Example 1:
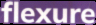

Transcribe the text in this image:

flexure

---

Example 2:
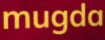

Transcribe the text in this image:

mugda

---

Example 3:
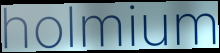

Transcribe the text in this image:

holmium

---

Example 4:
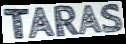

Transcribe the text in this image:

TARAS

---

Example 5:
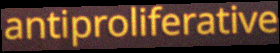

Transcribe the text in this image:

antiproliferative